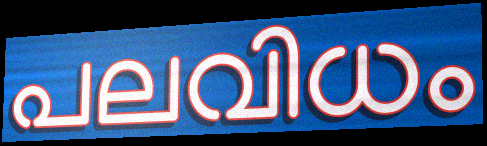
പലവിധം